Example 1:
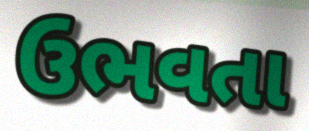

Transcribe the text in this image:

ઉભવતા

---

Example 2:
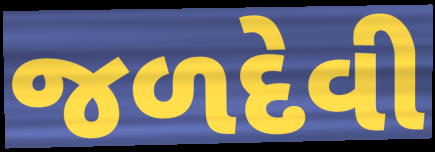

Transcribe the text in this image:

જળદેવી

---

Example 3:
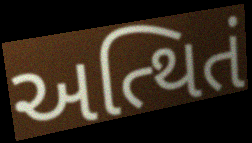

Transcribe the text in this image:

અત્થિતં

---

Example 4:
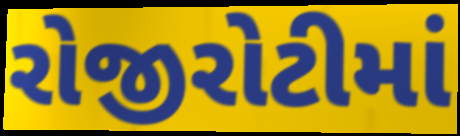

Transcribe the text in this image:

રોજીરોટીમાં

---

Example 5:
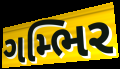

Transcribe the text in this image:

ગમ્ભિર